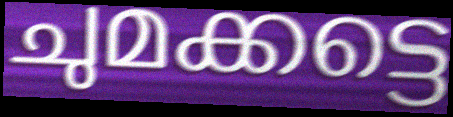
ചുമക്കട്ടെ